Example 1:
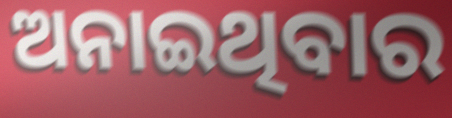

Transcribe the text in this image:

ଅନାଇଥିବାର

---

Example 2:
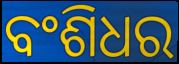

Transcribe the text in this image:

ବଂଶିଧର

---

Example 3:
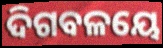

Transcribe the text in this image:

ଦିଗବଳୟେ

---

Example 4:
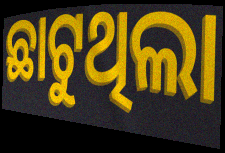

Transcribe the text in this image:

ଛାଟୁଥିଲା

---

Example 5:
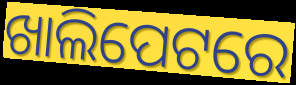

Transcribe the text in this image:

ଖାଲିପେଟରେ